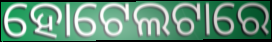
ହୋଟେଲଟାରେ